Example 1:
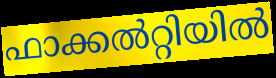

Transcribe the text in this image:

ഫാക്കൽറ്റിയിൽ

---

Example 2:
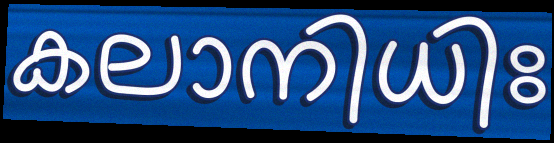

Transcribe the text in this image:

കലാനിധിഃ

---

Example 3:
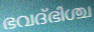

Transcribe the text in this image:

ഭവദ്ഭിശ്ച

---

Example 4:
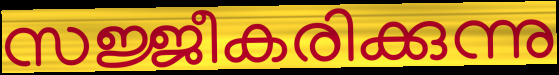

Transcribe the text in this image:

സജ്ജീകരിക്കുന്നു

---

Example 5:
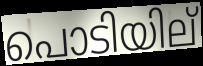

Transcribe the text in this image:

പൊടിയില്